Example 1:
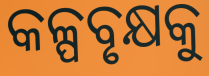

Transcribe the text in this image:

କଳ୍ପବୃକ୍ଷକୁ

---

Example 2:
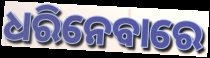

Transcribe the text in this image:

ଧରିନେବାରେ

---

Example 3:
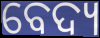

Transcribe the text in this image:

ବେଦ୍ୟ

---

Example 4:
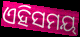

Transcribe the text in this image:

ଏହିସମୟ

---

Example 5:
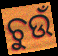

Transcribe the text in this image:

ଚୁଉଁ